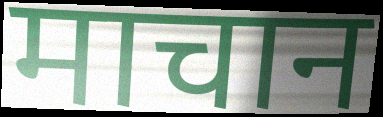
माचान